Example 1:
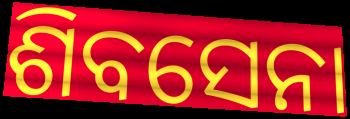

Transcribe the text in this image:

ଶିବସେନା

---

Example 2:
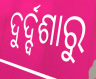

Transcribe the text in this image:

ଦୁର୍ଦ୍ଦଶାରୁ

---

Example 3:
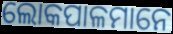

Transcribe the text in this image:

ଲୋକପାଳମାନେ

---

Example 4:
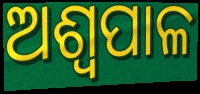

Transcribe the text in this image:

ଅଶ୍ୱପାଳ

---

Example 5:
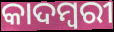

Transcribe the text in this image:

କାଦମ୍ୱରୀ